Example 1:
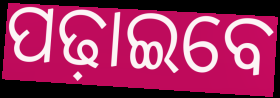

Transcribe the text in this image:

ପଢ଼ାଇବେ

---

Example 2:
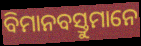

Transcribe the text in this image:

ବିମାନବସ୍ତୁମାନେ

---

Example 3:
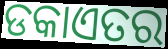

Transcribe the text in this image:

ଡକାଏତର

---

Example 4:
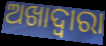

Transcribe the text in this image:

ଅଖାଦ୍ୱାରା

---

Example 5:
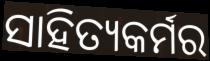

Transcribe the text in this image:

ସାହିତ୍ୟକର୍ମର